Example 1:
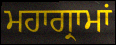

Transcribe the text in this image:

ਮਹਾਗ੍ਰਾਮਾਂ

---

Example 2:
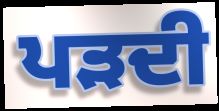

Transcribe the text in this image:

ਪੜਦੀ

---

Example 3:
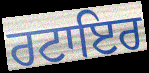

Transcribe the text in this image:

ਰਟਾਇਰ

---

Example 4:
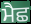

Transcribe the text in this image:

ਮੈਛ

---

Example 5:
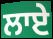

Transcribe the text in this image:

ਲਾਏ